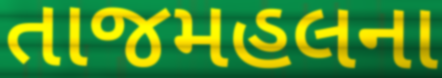
તાજમહલના